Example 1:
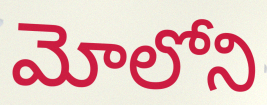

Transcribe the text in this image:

మోలోని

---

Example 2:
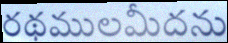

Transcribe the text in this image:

రథములమీదను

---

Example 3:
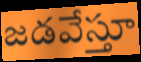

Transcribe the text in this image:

జడవేస్తూ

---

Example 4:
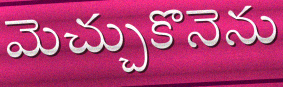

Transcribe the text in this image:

మెచ్చుకొనెను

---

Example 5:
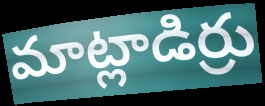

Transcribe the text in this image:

మాట్లాడిర్రు